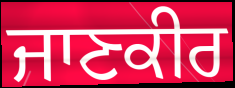
ਜਾਣਕੀਰ